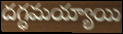
దగ్ధమయ్యాయి